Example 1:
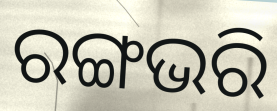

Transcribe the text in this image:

ରଙ୍ଗଭରି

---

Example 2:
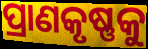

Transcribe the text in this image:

ପ୍ରାଣକୃଷ୍ଣକୁ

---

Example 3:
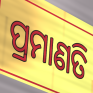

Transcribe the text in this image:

ପ୍ରମାଣତି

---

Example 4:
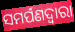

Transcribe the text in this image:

ସମର୍ପଣଦ୍ୱାରା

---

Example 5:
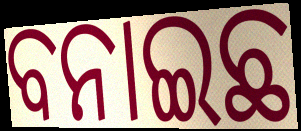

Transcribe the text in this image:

ବନାଇଛ